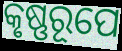
କୃଷ୍ଣରୂପେ